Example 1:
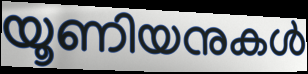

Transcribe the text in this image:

യൂണിയനുകൾ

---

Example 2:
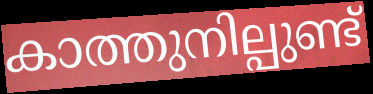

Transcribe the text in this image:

കാത്തുനില്പുണ്ട്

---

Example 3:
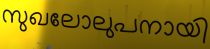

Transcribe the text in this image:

സുഖലോലുപനായി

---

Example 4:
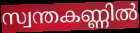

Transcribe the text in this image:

സ്വന്തകണ്ണിൽ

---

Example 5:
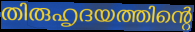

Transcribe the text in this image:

തിരുഹൃദയത്തിന്റെ